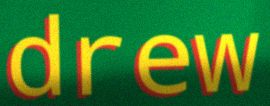
drew